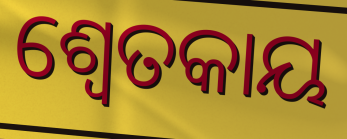
ଶ୍ବେତକାୟ